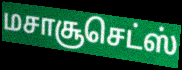
மசாசூசெட்ஸ்